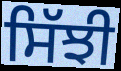
ਸਿੱਝੀ